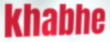
khabhe